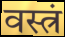
वस्त्रं